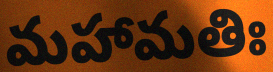
మహామతిః